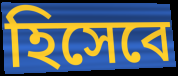
হিসেবে